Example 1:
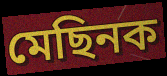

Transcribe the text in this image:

মেছিনক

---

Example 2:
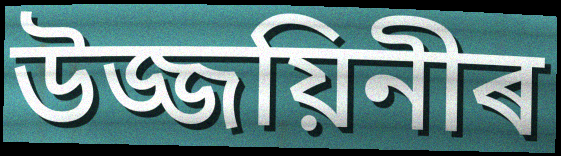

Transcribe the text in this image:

উজ্জয়িনীৰ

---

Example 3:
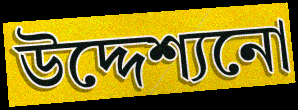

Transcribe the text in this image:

উদ্দেশ্যনো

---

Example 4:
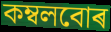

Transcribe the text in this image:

কম্বলবোৰ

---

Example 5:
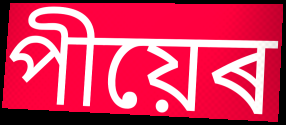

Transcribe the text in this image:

পীয়েৰ